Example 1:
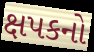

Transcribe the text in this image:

ક્ષપકનો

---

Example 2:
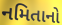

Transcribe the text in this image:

નમિતાનો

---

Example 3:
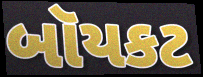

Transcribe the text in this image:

બૉયકટ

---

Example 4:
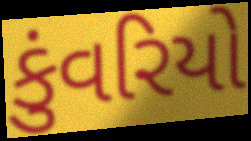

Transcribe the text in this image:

કુંવરિયો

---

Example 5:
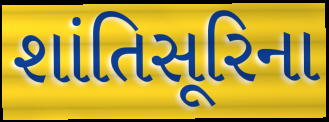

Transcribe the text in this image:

શાંતિસૂરિના